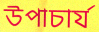
উপাচার্য